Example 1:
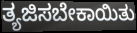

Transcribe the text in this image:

ತ್ಯಜಿಸಬೇಕಾಯಿತು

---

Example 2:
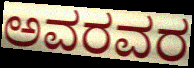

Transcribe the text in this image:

ಅವರವರ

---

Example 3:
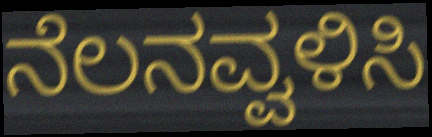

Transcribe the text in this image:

ನೆಲನವ್ವಳಿಸಿ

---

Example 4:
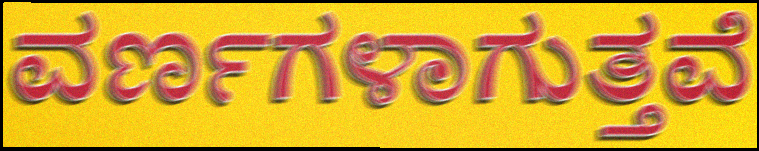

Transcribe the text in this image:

ವರ್ಣಗಳಾಗುತ್ತವೆ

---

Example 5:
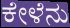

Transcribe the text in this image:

ಕೇಳೆನು